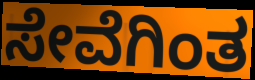
ಸೇವೆಗಿಂತ